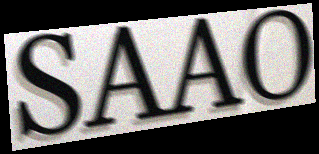
SAAO